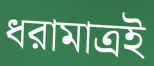
ধরামাত্রই